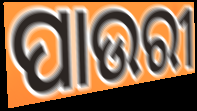
ପାଉରୀ